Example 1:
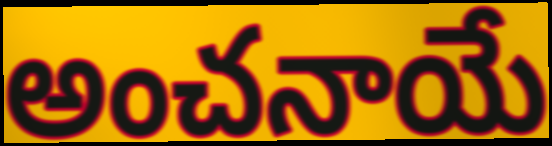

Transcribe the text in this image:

అంచనాయే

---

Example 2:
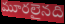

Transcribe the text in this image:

మూరలైనది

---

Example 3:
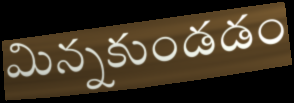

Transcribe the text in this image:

మిన్నకుండడం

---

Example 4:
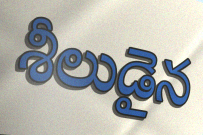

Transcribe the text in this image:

శీలుడైన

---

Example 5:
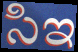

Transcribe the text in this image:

సిఇ